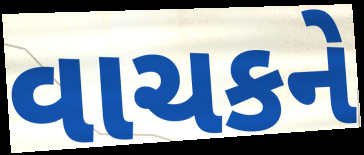
વાચકને